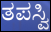
ತಪಸ್ವಿ